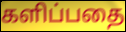
களிப்பதை